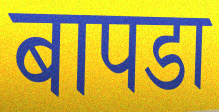
बापडा